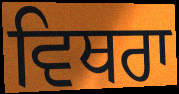
ਵਿਥਰਾ